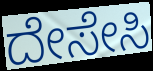
ದೇಸೇಸಿ